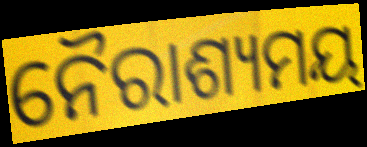
ନୈରାଶ୍ୟମୟ